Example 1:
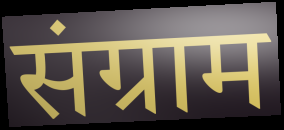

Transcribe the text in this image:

संग्राम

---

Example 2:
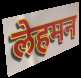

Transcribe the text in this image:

लेहमन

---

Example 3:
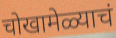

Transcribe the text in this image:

चोखामेळ्याचं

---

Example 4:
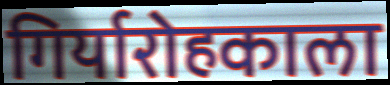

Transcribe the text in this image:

गिर्यारोहकाला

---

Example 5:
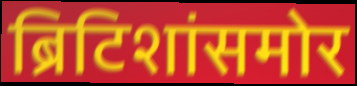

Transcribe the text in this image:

ब्रिटिशांसमोर